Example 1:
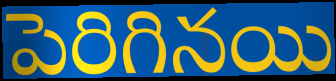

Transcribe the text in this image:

పెరిగినయి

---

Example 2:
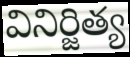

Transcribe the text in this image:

వినిర్జిత్య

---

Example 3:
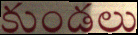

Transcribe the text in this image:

కుండలు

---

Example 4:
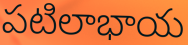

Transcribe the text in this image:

పటిలాభాయ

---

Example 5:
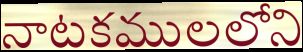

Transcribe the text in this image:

నాటకములలోని